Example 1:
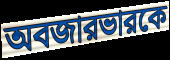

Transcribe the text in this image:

অবজারভারকে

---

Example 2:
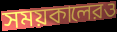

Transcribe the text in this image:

সময়কালেরও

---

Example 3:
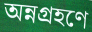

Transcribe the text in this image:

অন্নগ্রহণে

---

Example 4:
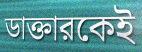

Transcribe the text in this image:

ডাক্তারকেই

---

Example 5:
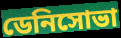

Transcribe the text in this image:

ডেনিসোভা